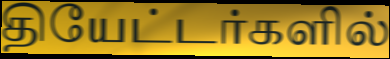
தியேட்டர்களில்